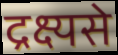
द्रक्ष्यसे